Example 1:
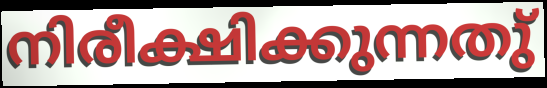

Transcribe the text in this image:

നിരീക്ഷിക്കുന്നതു്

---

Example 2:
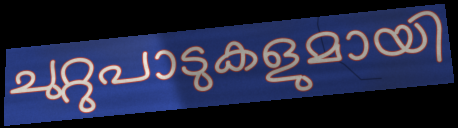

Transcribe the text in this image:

ചുറ്റുപാടുകളുമായി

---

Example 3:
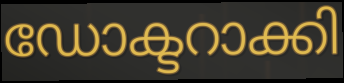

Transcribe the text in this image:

ഡോക്ടറാക്കി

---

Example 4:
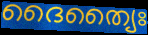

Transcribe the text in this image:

ദൈത്യൈഃ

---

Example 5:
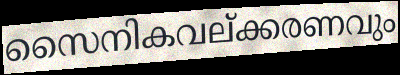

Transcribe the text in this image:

സൈനികവല്ക്കരണവും